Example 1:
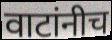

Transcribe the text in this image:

वाटांनीच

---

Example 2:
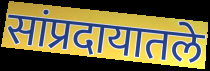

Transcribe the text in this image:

सांप्रदायातले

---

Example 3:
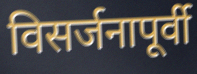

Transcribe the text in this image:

विसर्जनापूर्वी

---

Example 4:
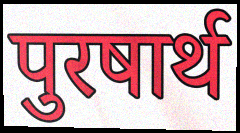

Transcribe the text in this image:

पुरषार्थ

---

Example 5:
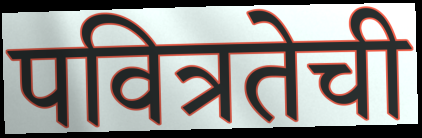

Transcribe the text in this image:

पवित्रतेची